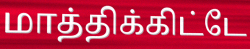
மாத்திக்கிட்டே